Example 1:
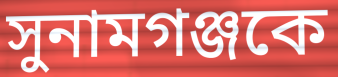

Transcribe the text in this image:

সুনামগঞ্জকে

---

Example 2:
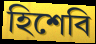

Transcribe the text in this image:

হিশেবি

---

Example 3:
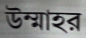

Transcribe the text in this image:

উম্মাহর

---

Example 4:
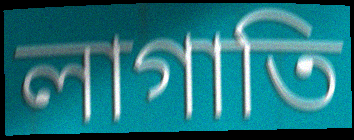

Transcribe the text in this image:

লাগাতি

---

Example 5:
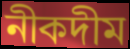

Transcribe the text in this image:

নীকদীম